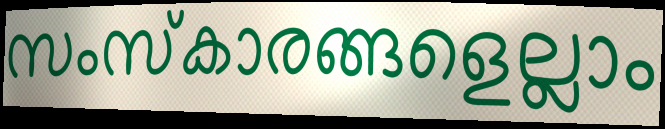
സംസ്കാരങ്ങളെല്ലാം